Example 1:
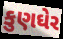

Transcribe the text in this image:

કુણઘેર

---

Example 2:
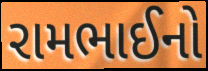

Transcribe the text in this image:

રામભાઈનો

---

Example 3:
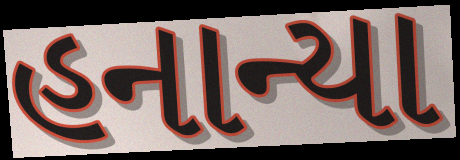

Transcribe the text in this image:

હનાન્યા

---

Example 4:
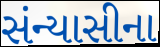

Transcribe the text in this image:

સંન્યાસીના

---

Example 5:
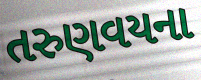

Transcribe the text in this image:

તરુણવયના